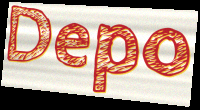
Depo